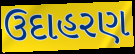
ઉદાહરણ